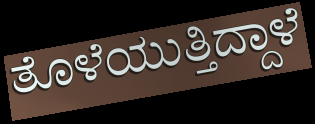
ತೊಳೆಯುತ್ತಿದ್ದಾಳೆ